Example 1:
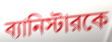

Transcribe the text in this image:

ব্যানিস্টারকে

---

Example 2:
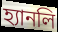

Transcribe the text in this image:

হ্যানলি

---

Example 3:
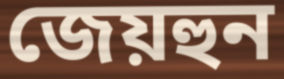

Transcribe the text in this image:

জেয়হুন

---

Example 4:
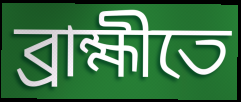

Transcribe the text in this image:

ব্রাহ্মীতে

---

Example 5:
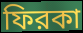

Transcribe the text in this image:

ফিরকা